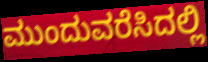
ಮುಂದುವರೆಸಿದಲ್ಲಿ